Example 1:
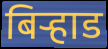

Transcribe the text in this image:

बिर्‍हाड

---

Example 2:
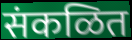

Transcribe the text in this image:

संकळित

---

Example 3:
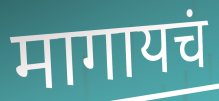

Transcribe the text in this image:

मागायचं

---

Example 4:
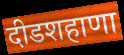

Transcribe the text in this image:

दीडशहाणा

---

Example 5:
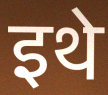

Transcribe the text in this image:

इथे